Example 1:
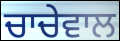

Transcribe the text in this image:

ਚਾਚੇਵਾਲ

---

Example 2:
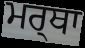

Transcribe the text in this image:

ਮਰ੍ਥਾ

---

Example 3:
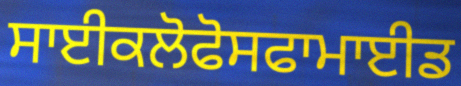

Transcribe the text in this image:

ਸਾਈਕਲੋਫੋਸਫਾਮਾਈਡ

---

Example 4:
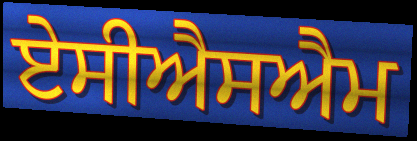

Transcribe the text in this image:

ਏਸੀਐਸਐਮ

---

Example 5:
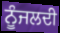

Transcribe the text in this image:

ਨੂੰਜਲਦੀ